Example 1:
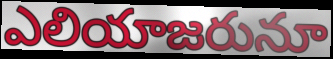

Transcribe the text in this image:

ఎలియాజరునూ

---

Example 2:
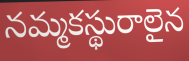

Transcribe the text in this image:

నమ్మకస్థురాలైన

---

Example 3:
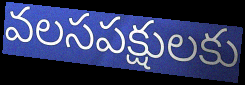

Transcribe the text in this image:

వలసపక్షులకు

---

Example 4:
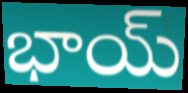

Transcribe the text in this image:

భాయ్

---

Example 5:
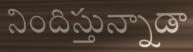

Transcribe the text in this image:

నిందిస్తున్నాడా